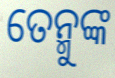
ତେନ୍ମୁଙ୍କ